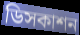
ডিসকাশন